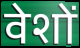
वेशों